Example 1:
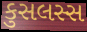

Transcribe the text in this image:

કુસલસ્સ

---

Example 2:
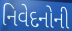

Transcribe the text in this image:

નિવેદનોની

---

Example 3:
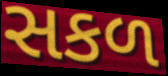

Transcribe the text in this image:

સકળ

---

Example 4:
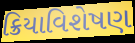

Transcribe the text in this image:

ક્રિયાવિશેષણ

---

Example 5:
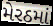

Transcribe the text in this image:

મેરઠમાં